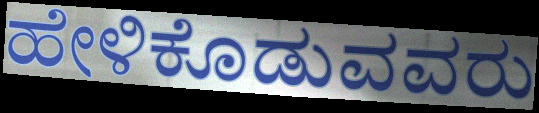
ಹೇಳಿಕೊಡುವವರು